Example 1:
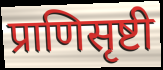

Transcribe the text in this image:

प्राणिसृष्टी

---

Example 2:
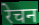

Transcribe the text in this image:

रेचन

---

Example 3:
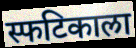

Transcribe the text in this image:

स्फटिकाला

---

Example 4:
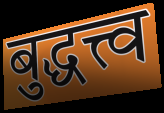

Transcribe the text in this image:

बुद्धत्त्व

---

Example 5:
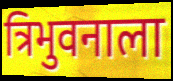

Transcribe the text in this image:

त्रिभुवनाला